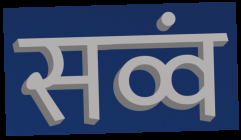
सव्वं